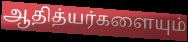
ஆதித்யர்களையும்